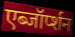
एब्जॉर्प्शन